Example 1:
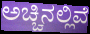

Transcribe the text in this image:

ಅಚ್ಚಿನಲ್ಲಿವೆ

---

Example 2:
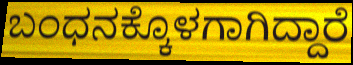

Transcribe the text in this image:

ಬಂಧನಕ್ಕೊಳಗಾಗಿದ್ದಾರೆ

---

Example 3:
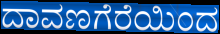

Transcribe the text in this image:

ದಾವಣಗೆರೆಯಿಂದ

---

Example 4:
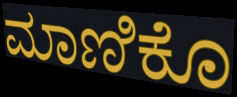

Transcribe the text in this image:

ಮಾಣಿಕೊ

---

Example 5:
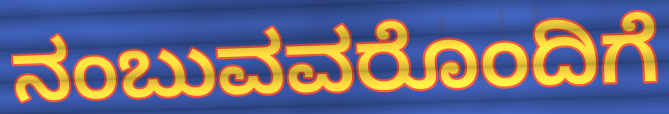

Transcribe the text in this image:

ನಂಬುವವರೊಂದಿಗೆ